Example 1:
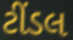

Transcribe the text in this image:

ટીંડલ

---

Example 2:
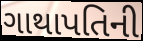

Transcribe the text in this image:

ગાથાપતિની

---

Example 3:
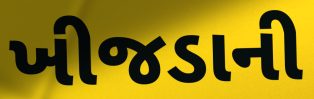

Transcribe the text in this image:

ખીજડાની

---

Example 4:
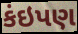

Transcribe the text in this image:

કંઇપણ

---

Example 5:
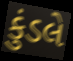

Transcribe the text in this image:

કુંડલે